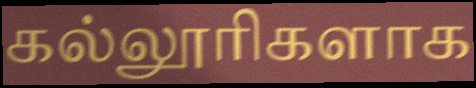
கல்லூரிகளாக